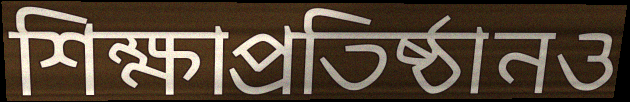
শিক্ষাপ্রতিষ্ঠানও